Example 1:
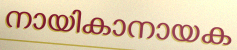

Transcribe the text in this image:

നായികാനായക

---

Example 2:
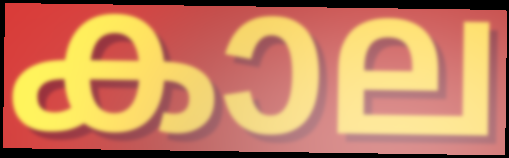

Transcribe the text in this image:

കാല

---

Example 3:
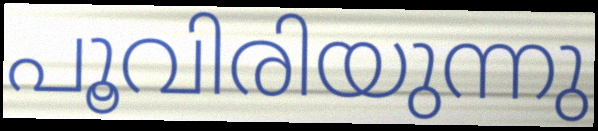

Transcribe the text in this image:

പൂവിരിയുന്നു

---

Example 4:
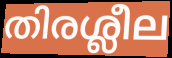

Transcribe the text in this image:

തിരശ്ലീല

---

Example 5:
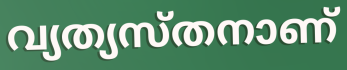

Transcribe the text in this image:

വ്യത്യസ്തനാണ്